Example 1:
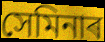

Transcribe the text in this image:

সেমিনাৰ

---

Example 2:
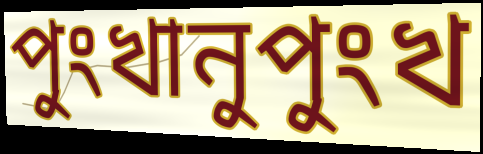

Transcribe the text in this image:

পুংখানুপুংখ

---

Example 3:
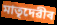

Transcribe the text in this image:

মাতৃদেৱীৰ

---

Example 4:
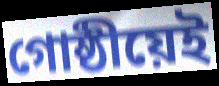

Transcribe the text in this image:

গোষ্ঠীয়েই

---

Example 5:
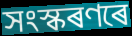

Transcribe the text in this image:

সংস্কৰণৰে